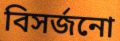
বিসৰ্জনো